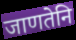
जाणतेनि